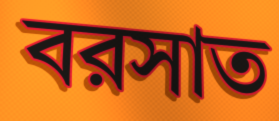
বরসাত